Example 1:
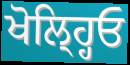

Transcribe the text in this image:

ਖੋਲ੍ਹ੍ਹਿਓ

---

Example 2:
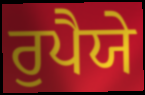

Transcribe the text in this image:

ਰੁਪੈਯੇ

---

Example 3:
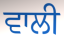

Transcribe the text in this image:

ਵਾਲੀ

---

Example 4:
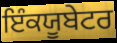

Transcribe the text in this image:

ਇੰਕਯੂਬੇਟਰ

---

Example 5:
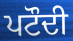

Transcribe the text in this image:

ਪਟੌਦੀ